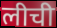
लीची